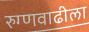
रुग्णवाढीला